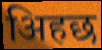
अिहछ